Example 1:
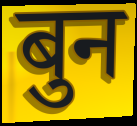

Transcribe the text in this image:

बुन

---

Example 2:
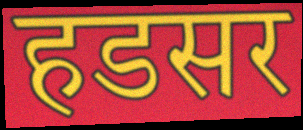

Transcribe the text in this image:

हडसर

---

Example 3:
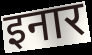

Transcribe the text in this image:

इनार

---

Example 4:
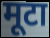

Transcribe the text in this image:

मूटा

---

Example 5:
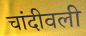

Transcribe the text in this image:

चांदीवली